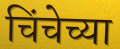
चिंचेच्या